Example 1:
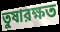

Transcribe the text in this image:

তুষারক্ষত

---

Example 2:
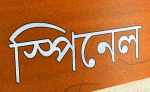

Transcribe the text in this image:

স্পিনেল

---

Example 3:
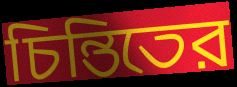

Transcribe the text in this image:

চিন্তিতের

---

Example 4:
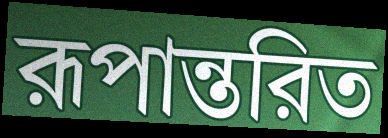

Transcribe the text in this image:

রূপান্তরিত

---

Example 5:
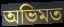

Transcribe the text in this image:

অভিমত